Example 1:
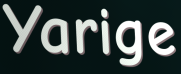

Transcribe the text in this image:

Yarige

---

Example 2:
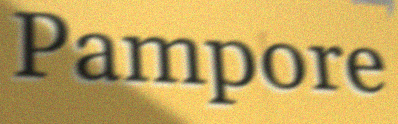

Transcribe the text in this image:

Pampore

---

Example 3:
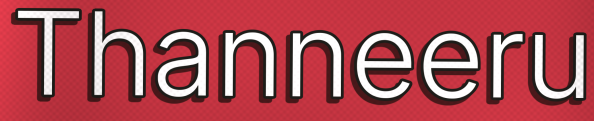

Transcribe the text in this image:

Thanneeru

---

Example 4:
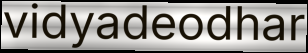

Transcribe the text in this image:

vidyadeodhar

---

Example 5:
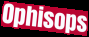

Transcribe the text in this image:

Ophisops